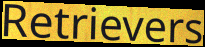
Retrievers